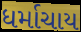
ધર્માચાય